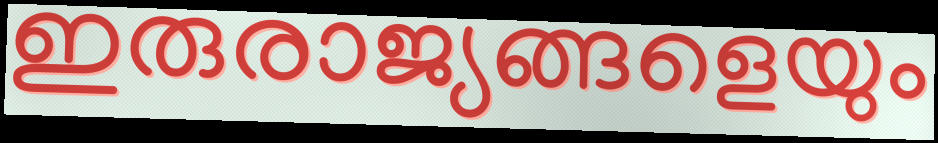
ഇരുരാജ്യങ്ങളെയും